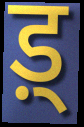
ड़्